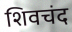
शिवचंद